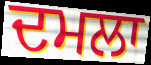
ਦਮਲਾ